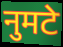
नुमटे